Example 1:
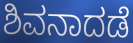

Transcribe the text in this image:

ಶಿವನಾದಡೆ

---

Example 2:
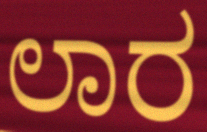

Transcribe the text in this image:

ಲಾರ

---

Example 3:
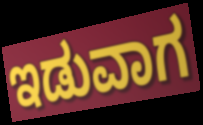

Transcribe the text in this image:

ಇಡುವಾಗ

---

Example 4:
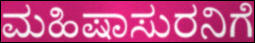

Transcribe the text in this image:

ಮಹಿಷಾಸುರನಿಗೆ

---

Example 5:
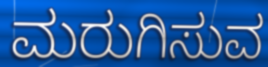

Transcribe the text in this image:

ಮರುಗಿಸುವ